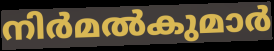
നിർമൽകുമാർ